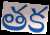
తక